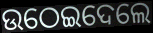
ଉଠେଇଦେଲେ